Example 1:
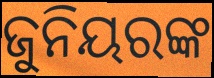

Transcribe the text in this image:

ଜୁନିୟରଙ୍କ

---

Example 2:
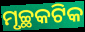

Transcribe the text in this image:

ମୃଚ୍ଛକଟିକ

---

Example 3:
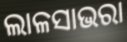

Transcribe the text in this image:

ଲାଳସାଭରା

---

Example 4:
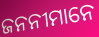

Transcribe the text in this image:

ଜନନୀମାନେ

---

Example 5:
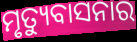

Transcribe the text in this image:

ମୃତ୍ୟୁବାସନାର